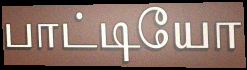
பாட்டியோ